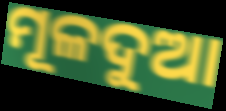
ମୂଳଦୁଆ